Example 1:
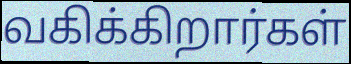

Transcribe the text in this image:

வகிக்கிறார்கள்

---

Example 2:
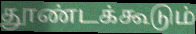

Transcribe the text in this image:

தூண்டக்கூடும்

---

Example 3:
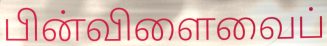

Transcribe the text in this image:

பின்விளைவைப்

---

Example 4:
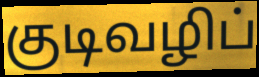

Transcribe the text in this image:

குடிவழிப்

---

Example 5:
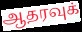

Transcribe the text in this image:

ஆதரவுக்